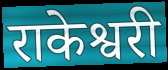
राकेश्वरी